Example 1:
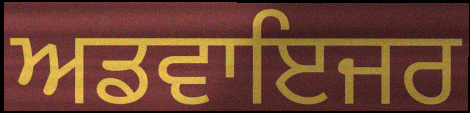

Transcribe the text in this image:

ਅਡਵਾਇਜਰ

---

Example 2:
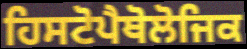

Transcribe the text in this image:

ਹਿਸਟੋਪੈਥੋਲੋਜਿਕ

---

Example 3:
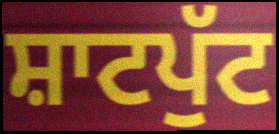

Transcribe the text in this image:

ਸ਼ਾਟਪੁੱਟ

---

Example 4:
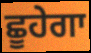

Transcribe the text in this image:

ਛੂਹੇਗਾ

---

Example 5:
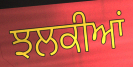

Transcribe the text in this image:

ਝਲਕੀਆਂ